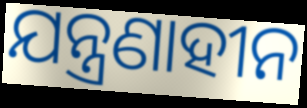
ଯନ୍ତ୍ରଣାହୀନ